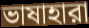
ভাষাহারা